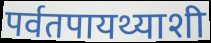
पर्वतपायथ्याशी